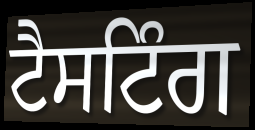
ਟੈਸਟਿੰਗ